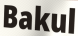
Bakul